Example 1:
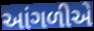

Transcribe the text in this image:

આંગળીએ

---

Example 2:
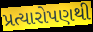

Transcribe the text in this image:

પ્રત્યારોપણથી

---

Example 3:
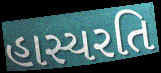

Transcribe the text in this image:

હાસ્યરતિ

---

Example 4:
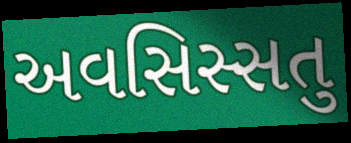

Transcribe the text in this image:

અવસિસ્સતુ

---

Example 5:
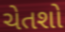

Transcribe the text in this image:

ચેતશો